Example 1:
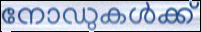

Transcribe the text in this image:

നോഡുകൾക്ക്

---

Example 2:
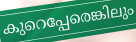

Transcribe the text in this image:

കുറെപ്പേരെങ്കിലും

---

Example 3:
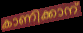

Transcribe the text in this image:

കാണിക്കാന്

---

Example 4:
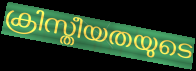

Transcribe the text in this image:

ക്രിസ്തീയതയുടെ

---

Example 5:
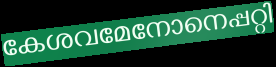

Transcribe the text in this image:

കേശവമേനോനെപ്പറ്റി